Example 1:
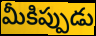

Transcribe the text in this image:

మీకిప్పుడు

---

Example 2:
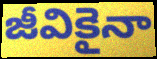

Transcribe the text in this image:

జీవికైనా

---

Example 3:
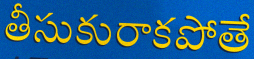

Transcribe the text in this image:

తీసుకురాకపోతే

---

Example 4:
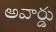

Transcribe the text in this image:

అవార్డు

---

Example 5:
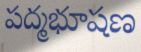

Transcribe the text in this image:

పద్మభూషణ